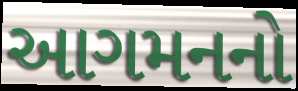
આગમનનો